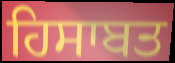
ਹਿਸਾਬਤ